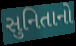
સુનિતાનો